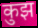
कुझ